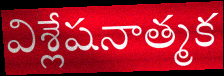
విశ్లేషనాత్మక